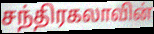
சந்திரகலாவின்